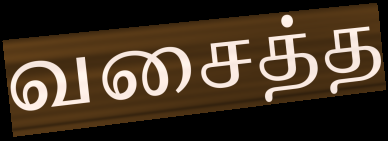
வசைத்த